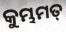
କୁମ୍ଭମତ୍